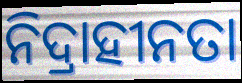
ନିଦ୍ରାହୀନତା